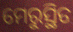
ମେରୁସ୍ଥିତ